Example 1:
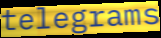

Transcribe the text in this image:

telegrams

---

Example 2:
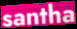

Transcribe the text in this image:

santha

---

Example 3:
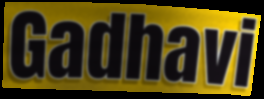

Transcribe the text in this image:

Gadhavi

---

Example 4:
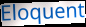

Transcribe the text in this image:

Eloquent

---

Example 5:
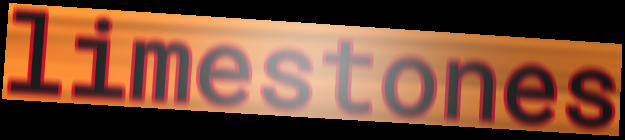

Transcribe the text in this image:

limestones